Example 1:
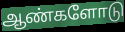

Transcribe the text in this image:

ஆண்களோடு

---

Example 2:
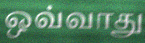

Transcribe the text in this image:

ஒவ்வாது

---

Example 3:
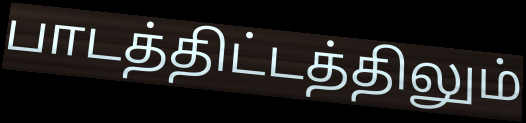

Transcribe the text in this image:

பாடத்திட்டத்திலும்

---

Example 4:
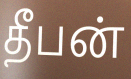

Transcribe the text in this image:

தீபன்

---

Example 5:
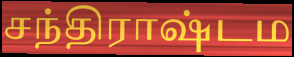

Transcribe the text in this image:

சந்திராஷ்டம